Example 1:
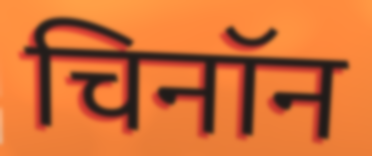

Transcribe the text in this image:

चिनॉन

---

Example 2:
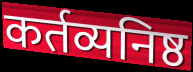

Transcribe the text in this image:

कर्तव्यनिष्ठ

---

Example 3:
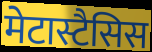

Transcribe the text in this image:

मेटास्टैसिस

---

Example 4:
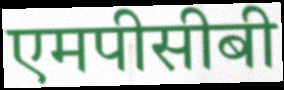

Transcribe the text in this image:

एमपीसीबी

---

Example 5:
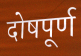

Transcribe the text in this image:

दोषपूर्ण